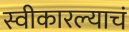
स्वीकारल्याचं